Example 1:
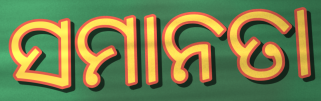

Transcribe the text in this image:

ସମାନତା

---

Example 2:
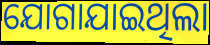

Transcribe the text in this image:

ଯୋଗାଯାଇଥିଲା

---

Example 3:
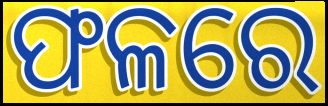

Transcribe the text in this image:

ଫଳରେ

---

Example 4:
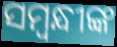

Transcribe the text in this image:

ସମ୍ବନ୍ଧୀଙ୍କ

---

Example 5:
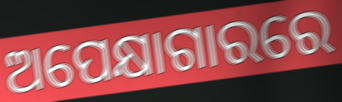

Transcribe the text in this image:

ଅପେକ୍ଷାଗାରରେ